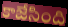
కాజేసింది